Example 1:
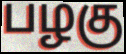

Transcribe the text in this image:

பழகு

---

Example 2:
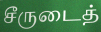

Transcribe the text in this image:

சீருடைத்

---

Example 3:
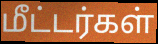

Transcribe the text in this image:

மீட்டர்கள்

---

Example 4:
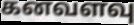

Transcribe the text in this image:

கனவளவு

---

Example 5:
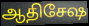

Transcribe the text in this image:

ஆதிசேஷ